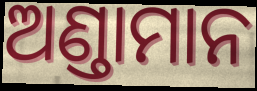
ଅଣ୍ଡାମାନ